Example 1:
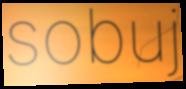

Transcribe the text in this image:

sobuj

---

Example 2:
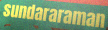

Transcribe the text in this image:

sundararaman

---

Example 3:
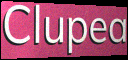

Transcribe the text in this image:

Clupea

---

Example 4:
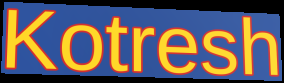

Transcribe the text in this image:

Kotresh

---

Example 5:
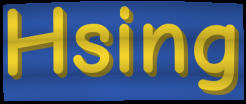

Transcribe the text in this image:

Hsing